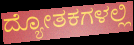
ದ್ಯೋತಕಗಳಲ್ಲಿ